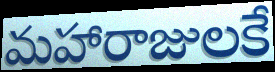
మహారాజులకే